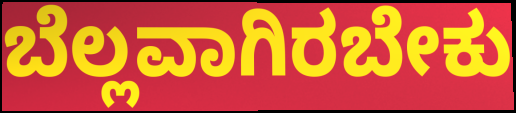
ಬೆಲ್ಲವಾಗಿರಬೇಕು